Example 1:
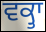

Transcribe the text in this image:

ਵਕ੍ਤਾ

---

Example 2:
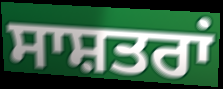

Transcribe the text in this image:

ਸਾਸ਼ਤਰਾਂ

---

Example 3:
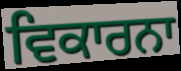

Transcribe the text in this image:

ਵਿਕਾਰਨਾ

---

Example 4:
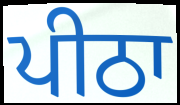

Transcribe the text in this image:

ਪੀਠਾ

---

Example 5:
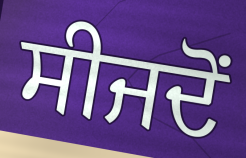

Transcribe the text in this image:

ਸੀਜਦੋਂ